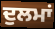
ਦੁਲਮਾਂ